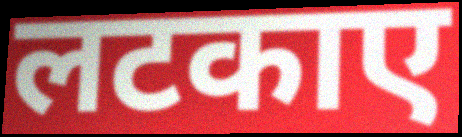
लटकाए